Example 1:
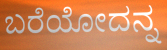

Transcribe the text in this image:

ಬರೆಯೋದನ್ನ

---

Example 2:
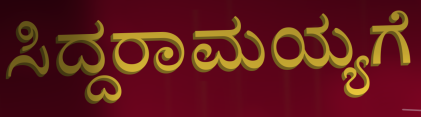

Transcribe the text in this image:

ಸಿದ್ದರಾಮಯ್ಯಗೆ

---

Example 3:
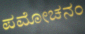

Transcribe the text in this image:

ಪಮೋಚನಂ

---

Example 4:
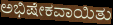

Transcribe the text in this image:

ಅಭಿಷೇಕವಾಯಿತು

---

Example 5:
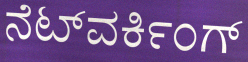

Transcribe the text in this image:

ನೆಟ್‌ವರ್ಕಿಂಗ್